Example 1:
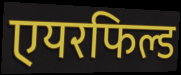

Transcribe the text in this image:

एयरफिल्ड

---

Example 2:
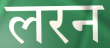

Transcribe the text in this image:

लरन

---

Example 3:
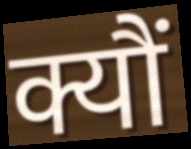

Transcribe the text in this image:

क्यौं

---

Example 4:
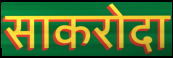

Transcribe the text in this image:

साकरोदा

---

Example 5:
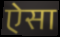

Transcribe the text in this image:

ऐेसा